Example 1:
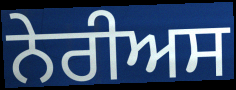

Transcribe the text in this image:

ਨੇਰੀਅਸ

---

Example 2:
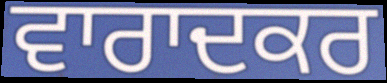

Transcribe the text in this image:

ਵਾਰਾਦਕਰ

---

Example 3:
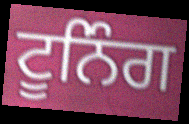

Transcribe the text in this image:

ਟੂਨਿੰਗ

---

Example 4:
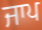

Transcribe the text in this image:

ਜਾਪ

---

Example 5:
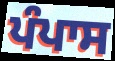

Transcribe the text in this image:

ਪੰਪਾਸ